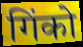
गिंको